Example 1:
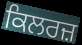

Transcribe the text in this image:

ਕਿਲਰਜ਼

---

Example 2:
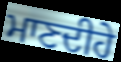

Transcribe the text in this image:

ਮਾਣਦੀਹੇ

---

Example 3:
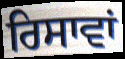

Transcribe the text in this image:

ਰਿਸਾਵਾਂ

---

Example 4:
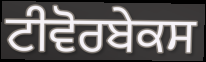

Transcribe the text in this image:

ਟੀਵੋਰਬੇਕਸ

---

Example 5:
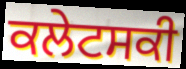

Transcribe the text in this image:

ਕਲੇਟਸਕੀ